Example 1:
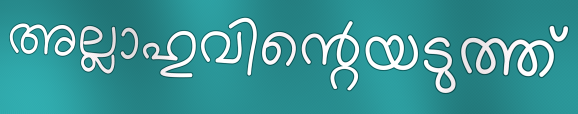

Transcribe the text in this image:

അല്ലാഹുവിന്റെയടുത്ത്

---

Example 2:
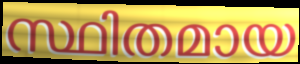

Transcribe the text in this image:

സ്ഥിതമായ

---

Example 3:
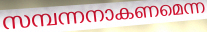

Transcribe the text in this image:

സമ്പന്നനാകണമെന്ന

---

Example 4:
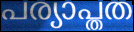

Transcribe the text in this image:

പര്യാപ്തത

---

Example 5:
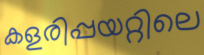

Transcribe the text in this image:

കളരിപ്പയറ്റിലെ